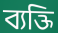
ব্যক্তি